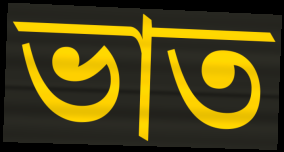
ভাত